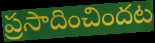
ప్రసాదించిందట